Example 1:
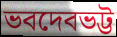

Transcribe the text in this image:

ভবদেবভট্ট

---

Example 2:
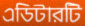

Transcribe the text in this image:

এডিটারটি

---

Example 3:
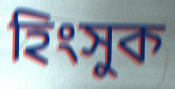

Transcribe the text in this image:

হিংসুক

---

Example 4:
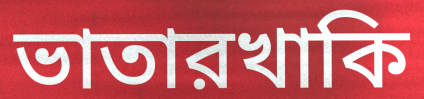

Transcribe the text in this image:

ভাতারখাকি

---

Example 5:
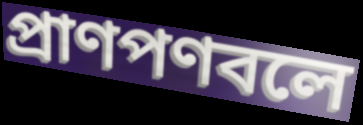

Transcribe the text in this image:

প্রাণপণবলে